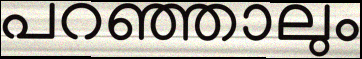
പറഞ്ഞാലും